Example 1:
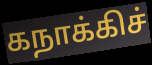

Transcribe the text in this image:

கநாக்கிச்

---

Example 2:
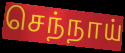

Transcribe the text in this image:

செந்நாய்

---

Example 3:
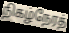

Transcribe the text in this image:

நிகழ்நேரத்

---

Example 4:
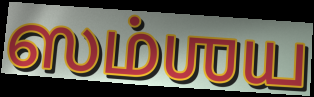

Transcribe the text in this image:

ஸம்ஶய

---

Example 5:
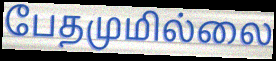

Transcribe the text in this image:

பேதமுமில்லை